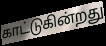
காட்டுகின்றது